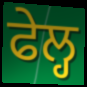
ਫੇਲ੍ਹ